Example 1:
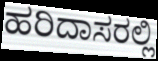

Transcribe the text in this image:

ಹರಿದಾಸರಲ್ಲಿ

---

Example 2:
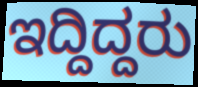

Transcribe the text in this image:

ಇದ್ದಿದ್ದರು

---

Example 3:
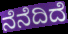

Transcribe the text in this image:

ನೆನೆದಿದೆ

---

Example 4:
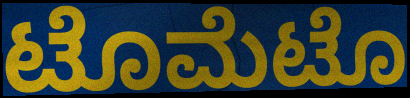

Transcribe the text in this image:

ಟೊಮೆಟೊ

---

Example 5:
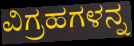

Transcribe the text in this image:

ವಿಗ್ರಹಗಳನ್ನ